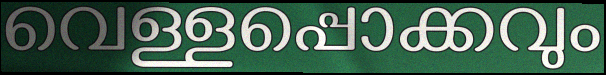
വെള്ളപ്പൊക്കവും